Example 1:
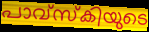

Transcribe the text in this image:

പാവ്സ്കിയുടെ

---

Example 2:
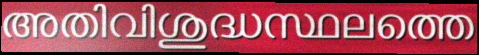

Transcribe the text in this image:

അതിവിശുദ്ധസ്ഥലത്തെ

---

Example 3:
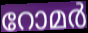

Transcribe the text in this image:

റോമർ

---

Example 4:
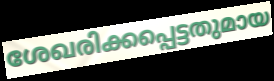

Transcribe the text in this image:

ശേഖരിക്കപ്പെട്ടതുമായ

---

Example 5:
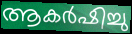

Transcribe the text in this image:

ആകർഷിച്ചു